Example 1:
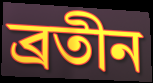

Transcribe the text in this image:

ব্রতীন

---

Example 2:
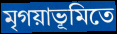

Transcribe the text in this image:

মৃগয়াভূমিতে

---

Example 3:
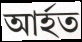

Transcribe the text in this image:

আর্হত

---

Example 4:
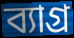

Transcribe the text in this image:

ব্যাগ্র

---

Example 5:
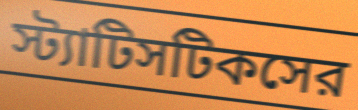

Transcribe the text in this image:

স্ট্যাটিসটিকসের